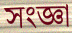
সংজ্ঞা